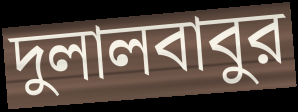
দুলালবাবুর